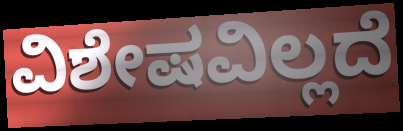
ವಿಶೇಷವಿಲ್ಲದೆ